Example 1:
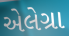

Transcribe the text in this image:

એલેગ્રા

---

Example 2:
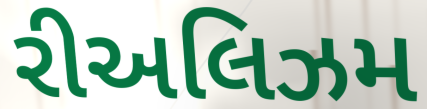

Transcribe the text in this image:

રીઅલિઝમ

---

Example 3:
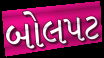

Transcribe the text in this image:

બોલપટ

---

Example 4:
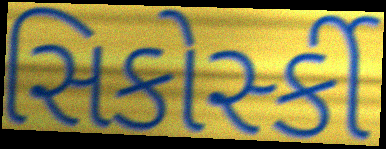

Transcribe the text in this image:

સિકોર્સ્કી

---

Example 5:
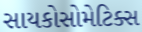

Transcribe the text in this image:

સાયકોસોમેટિક્સ